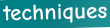
techniques